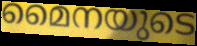
മൈനയുടെ